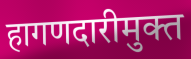
हागणदारीमुक्त